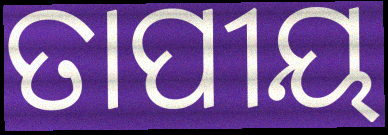
ତାପୀୟ